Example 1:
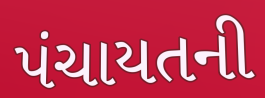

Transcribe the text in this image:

પંચાયતની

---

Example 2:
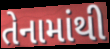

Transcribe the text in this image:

તેનામાંથી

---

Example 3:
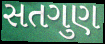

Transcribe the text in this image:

સતગુણ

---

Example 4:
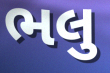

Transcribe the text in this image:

ભલુ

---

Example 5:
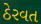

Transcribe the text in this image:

ઠેરવત